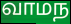
வாமந